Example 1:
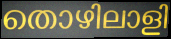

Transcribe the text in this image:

തൊഴിലാളി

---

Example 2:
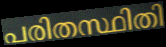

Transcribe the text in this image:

പരിതസ്ഥിതി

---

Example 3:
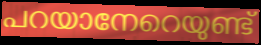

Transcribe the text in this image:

പറയാനേറെയുണ്ട്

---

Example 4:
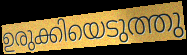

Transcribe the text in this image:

ഉരുക്കിയെടുത്തു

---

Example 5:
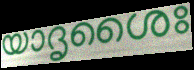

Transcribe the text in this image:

യാദൃശൈഃ